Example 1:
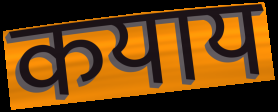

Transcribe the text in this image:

कयाय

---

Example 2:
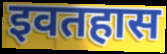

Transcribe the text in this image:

इवतहास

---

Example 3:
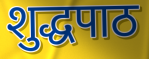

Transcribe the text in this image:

शुद्धपाठ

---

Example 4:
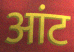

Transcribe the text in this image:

आंट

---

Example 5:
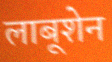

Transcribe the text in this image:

लाबूशेन